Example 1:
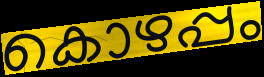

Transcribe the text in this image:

കൊഴപ്പം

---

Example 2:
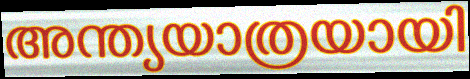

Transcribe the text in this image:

അന്ത്യയാത്രയായി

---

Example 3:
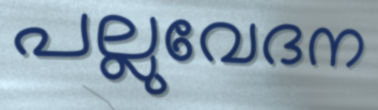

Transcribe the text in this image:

പല്ലുവേദന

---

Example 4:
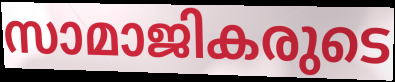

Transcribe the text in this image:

സാമാജികരുടെ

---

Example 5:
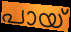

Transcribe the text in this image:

പായ്